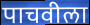
पाचवीला